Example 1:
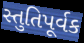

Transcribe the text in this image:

સ્તુતિપૂર્વક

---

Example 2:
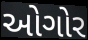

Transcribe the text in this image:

ઓગોર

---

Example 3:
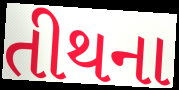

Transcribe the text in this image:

તીથના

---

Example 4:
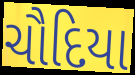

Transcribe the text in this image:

ચૌદિયા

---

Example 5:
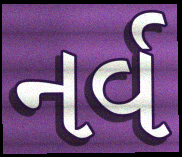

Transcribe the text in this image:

નર્વ